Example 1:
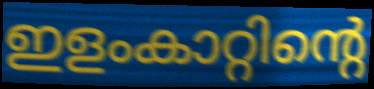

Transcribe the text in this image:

ഇളംകാറ്റിന്റെ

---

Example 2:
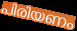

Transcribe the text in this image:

പിരിയണം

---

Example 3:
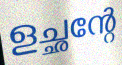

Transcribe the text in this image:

ളച്ഛന്റേ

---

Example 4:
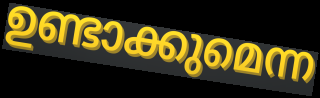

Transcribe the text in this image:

ഉണ്ടാക്കുമെന്ന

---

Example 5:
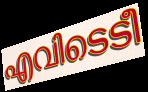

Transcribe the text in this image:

എവിടെടീ